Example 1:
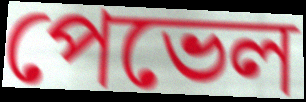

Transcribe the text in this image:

পেভেল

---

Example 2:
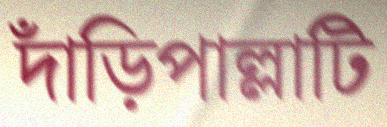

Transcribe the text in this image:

দাঁড়িপাল্লাটি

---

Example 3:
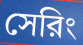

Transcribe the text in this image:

সেরিং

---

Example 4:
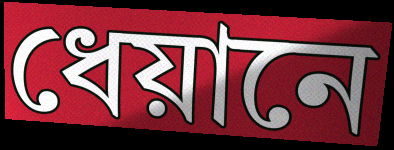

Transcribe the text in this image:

ধেয়ানে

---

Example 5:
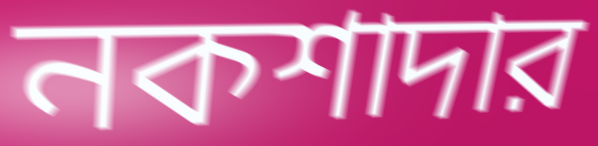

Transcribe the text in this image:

নকশাদার